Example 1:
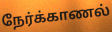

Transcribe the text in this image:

நேர்க்காணல்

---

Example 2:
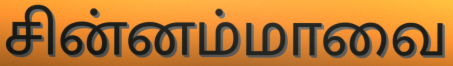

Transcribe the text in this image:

சின்னம்மாவை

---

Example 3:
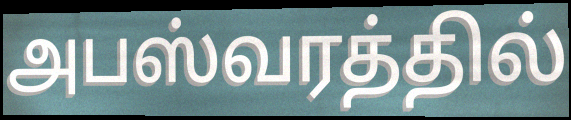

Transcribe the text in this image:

அபஸ்வரத்தில்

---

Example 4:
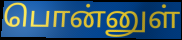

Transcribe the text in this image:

பொன்னுள்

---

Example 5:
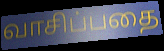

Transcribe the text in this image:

வாசிப்பதை